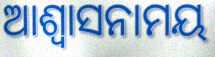
ଆଶ୍ୱାସନାମୟ